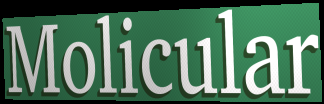
Molicular